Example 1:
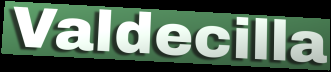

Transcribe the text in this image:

Valdecilla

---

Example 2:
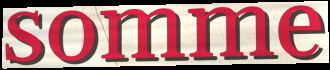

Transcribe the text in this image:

somme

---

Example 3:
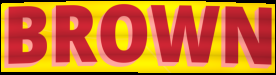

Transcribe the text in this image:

BROWN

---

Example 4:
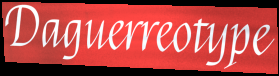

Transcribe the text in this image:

Daguerreotype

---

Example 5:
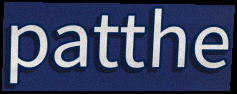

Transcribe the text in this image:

patthe